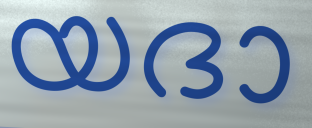
യദാ